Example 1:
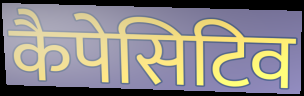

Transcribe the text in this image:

कैपेसिटिव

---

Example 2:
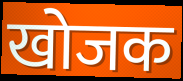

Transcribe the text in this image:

खोजक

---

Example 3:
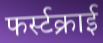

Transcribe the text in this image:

फर्स्टक्राई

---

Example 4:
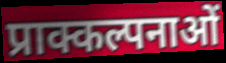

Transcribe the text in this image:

प्राक्कल्पनाओं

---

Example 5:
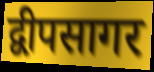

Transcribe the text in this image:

द्वीपसागर